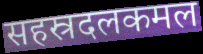
सहस्रदलकमल